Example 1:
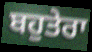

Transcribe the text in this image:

ਬਹੁਤੇਰਾ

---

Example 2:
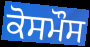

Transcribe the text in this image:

ਕੋਸਮੌਸ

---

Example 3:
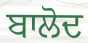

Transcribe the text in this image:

ਬਾਲੋਦ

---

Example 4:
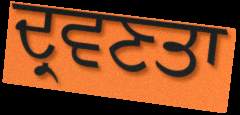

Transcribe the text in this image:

ਦ੍ਰਵਣਤਾ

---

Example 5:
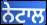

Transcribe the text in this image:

ਨੇਟਾਲ